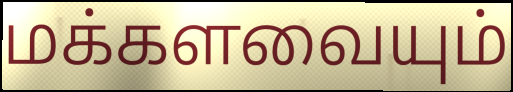
மக்களவையும்